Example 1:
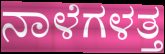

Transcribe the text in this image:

ನಾಳೆಗಳತ್ತ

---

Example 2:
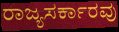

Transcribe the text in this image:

ರಾಜ್ಯಸರ್ಕಾರವು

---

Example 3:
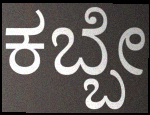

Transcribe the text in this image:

ಕಬ್ಬೇ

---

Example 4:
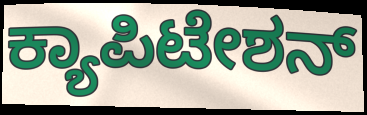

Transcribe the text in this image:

ಕ್ಯಾಪಿಟೇಶನ್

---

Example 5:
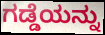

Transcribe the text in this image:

ಗಡ್ಡೆಯನ್ನು